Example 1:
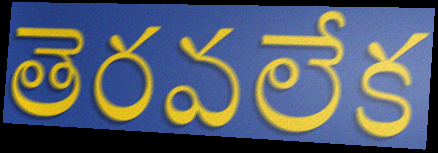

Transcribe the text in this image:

తెరవలేక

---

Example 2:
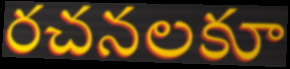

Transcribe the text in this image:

రచనలకూ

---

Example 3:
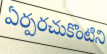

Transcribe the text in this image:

ఏర్పరచుకొంటిని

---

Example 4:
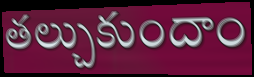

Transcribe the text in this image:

తల్చుకుందాం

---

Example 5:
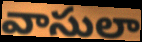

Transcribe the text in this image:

వాసులా